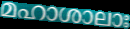
മഹാശാലാഃ